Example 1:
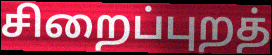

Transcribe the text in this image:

சிறைப்புறத்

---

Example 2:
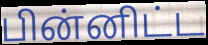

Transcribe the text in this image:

பின்னிட்ட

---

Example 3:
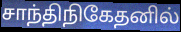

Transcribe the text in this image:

சாந்திநிகேதனில்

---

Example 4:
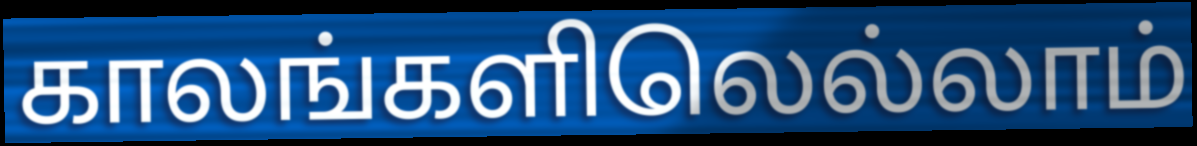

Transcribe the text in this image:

காலங்களிலெல்லாம்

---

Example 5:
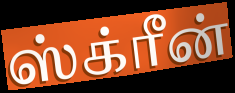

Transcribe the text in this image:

ஸ்க்ரீன்